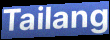
Tailang